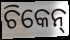
ଚିକେନ୍